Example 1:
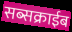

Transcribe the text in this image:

सब्सक्राईब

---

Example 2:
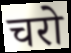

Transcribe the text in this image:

चरो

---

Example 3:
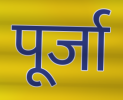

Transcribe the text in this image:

पूर्जा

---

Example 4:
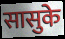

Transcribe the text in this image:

सासुके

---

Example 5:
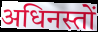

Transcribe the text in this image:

अधिनस्तों